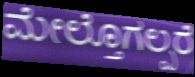
ಮೇಲ್ತೊಗಲ್ಪರೆ